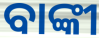
ବାଙ୍କୀ